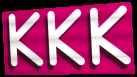
KKK